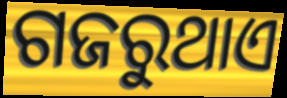
ଗଜରୁଥାଏ